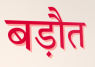
बड़ौत